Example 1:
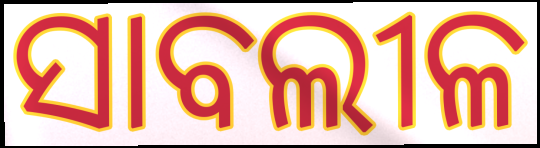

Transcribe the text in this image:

ସାବଲୀଳ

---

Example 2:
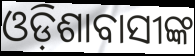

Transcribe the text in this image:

ଓଡ଼ିଶାବାସୀଙ୍କ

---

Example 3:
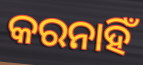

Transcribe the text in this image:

କରନାହିଁ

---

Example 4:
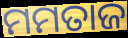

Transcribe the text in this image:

ମମତାଜ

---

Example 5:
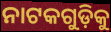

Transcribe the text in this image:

ନାଟକଗୁଡ଼ିକୁ